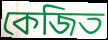
কেজিত